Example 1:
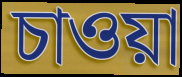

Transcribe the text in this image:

চাওয়া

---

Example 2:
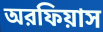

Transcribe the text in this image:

অরফিয়াস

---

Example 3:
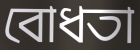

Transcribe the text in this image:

বোধতা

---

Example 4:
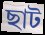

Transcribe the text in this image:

ছাট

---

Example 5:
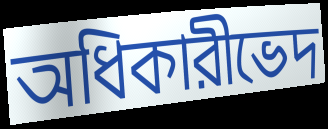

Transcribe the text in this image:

অধিকারীভেদ